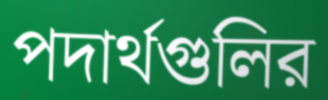
পদার্থগুলির